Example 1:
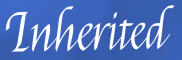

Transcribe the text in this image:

Inherited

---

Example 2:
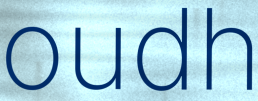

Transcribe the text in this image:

oudh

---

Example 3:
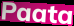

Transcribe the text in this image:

Paata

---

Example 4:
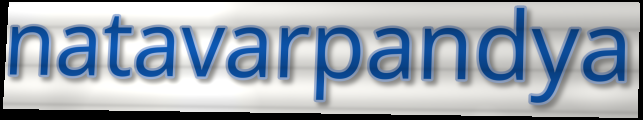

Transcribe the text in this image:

natavarpandya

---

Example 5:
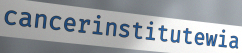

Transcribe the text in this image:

cancerinstitutewia